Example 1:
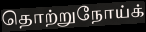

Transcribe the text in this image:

தொற்றுநோய்க்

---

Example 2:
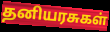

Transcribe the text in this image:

தனியரசுகள்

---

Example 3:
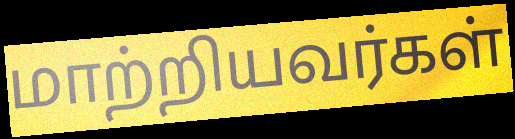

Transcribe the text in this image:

மாற்றியவர்கள்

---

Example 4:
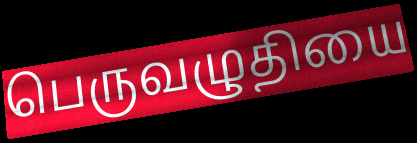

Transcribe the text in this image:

பெருவழுதியை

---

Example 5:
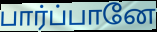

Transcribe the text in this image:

பார்ப்பானே